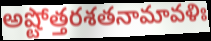
అష్టోత్తరశతనామావళిః